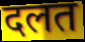
दलत